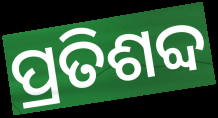
ପ୍ରତିଶବ୍ଦ